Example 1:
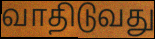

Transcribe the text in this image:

வாதிடுவது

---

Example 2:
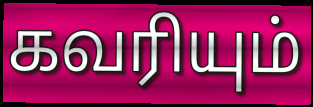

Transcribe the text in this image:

கவரியும்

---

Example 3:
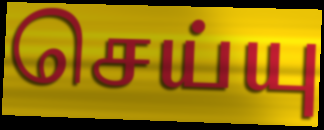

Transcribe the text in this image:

செய்யு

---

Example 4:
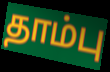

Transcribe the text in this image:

தாம்பு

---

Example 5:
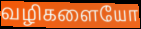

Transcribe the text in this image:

வழிகளையோ